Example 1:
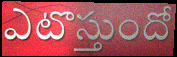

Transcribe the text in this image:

ఎటొస్తుందో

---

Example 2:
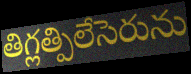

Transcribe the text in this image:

తిగ్లత్పిలేసెరును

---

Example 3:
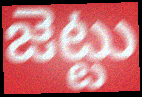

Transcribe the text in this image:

జెట్టు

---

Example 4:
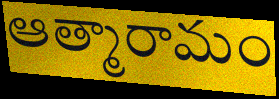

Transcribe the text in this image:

ఆత్మారామం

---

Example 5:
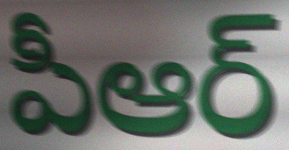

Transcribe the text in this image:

పీఆర్